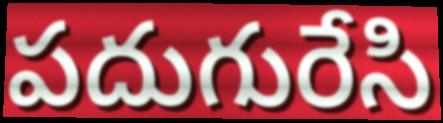
పదుగురేసి